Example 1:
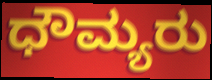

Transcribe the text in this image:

ಧೌಮ್ಯರು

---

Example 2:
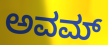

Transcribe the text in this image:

ಅವಮ್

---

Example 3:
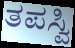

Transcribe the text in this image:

ತಪಸ್ವಿ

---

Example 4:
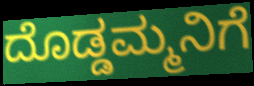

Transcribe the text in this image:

ದೊಡ್ಡಮ್ಮನಿಗೆ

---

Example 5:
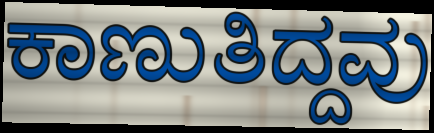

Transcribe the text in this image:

ಕಾಣುತಿದ್ದವು